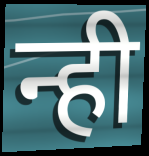
न्ही